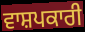
ਵਾਸ਼ਪਕਾਰੀ